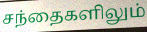
சந்தைகளிலும்